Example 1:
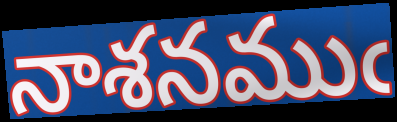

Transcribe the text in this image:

నాశనముఁ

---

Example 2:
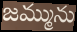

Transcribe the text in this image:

జమ్మును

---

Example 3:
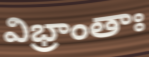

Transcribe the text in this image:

విభ్రాంతాః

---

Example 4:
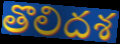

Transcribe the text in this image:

తొలిదశ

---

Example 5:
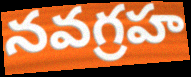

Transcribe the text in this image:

నవగ్రహ